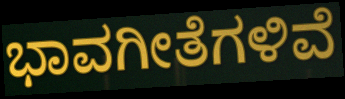
ಭಾವಗೀತೆಗಳಿವೆ